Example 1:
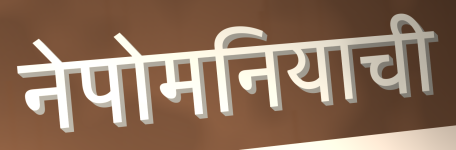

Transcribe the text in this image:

नेपोमनियाची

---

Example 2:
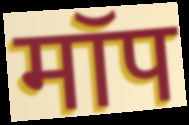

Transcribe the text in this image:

मॉप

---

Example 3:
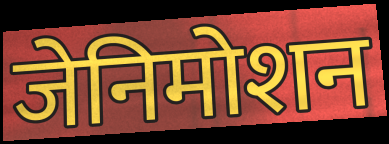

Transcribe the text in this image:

जेनिमोशन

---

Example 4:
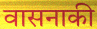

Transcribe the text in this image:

वासनाकी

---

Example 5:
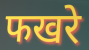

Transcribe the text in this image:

फखरे